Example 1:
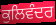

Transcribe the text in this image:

ਕੁਲਿਵੰਦਰ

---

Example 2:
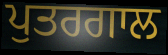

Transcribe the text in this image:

ਪੁਤਰਗਾਲ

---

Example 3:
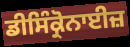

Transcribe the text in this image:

ਡੀਸਿੰਕ੍ਰੋਨਾਈਜ਼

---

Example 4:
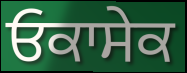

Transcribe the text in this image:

ਓਕਾਸੇਕ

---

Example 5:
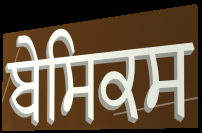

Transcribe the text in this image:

ਬੇਸਿਕਸ